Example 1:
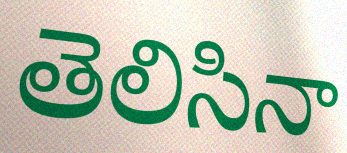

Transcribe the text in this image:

తెలిసినా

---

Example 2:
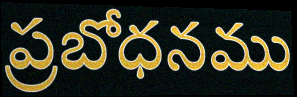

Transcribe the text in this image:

ప్రబోధనము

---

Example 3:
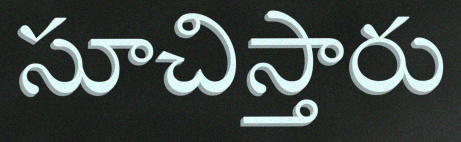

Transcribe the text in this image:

సూచిస్తారు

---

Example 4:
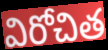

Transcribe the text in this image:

విరోచిత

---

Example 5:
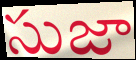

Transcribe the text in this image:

సుజా